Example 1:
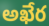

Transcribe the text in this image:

అఖేర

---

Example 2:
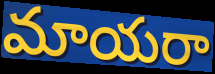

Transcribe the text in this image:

మాయరా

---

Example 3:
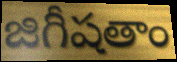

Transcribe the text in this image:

జిగీషతాం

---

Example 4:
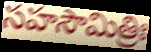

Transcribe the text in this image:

సహసౌమిత్రిః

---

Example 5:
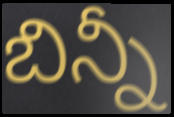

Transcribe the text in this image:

బిన్నీ